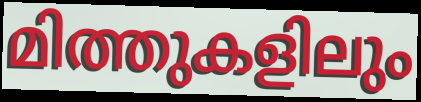
മിത്തുകളിലും